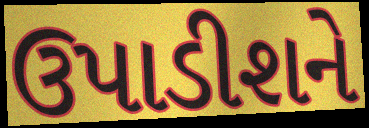
ઉપાડીશને